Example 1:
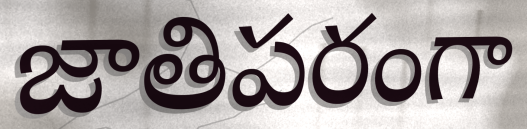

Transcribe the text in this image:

జాతిపరంగా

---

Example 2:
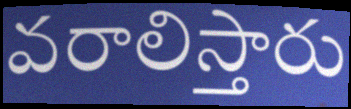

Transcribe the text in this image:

వరాలిస్తారు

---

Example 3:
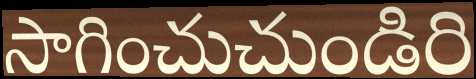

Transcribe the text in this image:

సాగించుచుండిరి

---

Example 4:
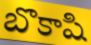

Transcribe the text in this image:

బొకాషి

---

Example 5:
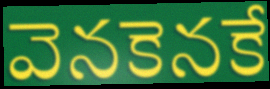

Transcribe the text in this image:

వెనకెనకే